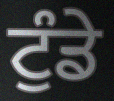
ਟੁੰਡੇ